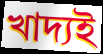
খাদ্যই